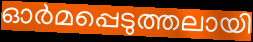
ഓർമപ്പെടുത്തലായി